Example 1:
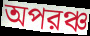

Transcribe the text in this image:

অপরঞ্চ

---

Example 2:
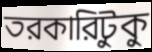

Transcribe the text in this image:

তরকারিটুকু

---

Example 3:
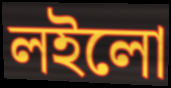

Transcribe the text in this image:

লইলো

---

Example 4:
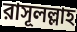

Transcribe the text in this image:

রাসূলল্লাহ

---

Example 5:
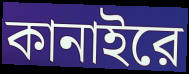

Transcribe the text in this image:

কানাইরে